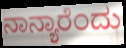
ನಾನ್ಯಾರೆಂದು